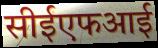
सीईएफआई